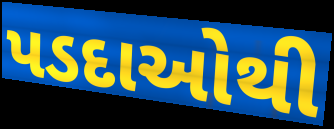
પડદાઓથી